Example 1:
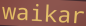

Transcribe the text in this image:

waikar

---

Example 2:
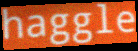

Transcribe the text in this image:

haggle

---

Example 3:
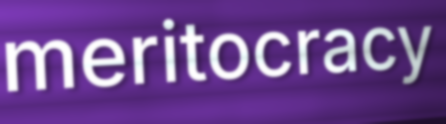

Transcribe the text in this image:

meritocracy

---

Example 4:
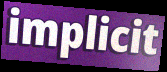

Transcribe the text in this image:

implicit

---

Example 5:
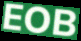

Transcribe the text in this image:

EOB